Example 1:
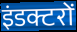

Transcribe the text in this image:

इंडक्टरों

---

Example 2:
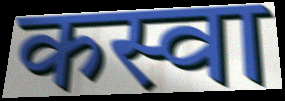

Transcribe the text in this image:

कस्वा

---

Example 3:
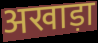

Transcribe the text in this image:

अखाड़ा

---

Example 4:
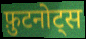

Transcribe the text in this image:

फ़ुटनोट्स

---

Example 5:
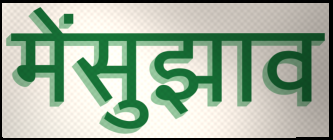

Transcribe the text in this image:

मेंसुझाव